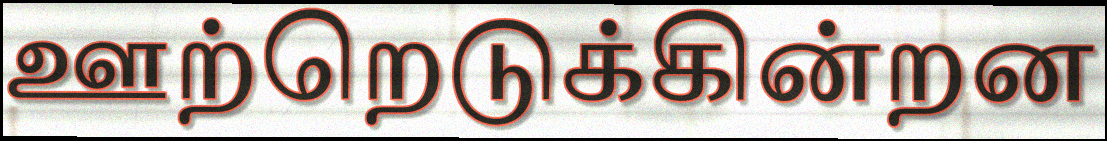
ஊற்றெடுக்கின்றன